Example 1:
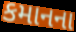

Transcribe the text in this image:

કમાનના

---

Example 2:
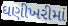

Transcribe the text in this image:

ઘણીખરીમાં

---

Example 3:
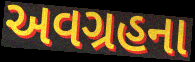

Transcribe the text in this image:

અવગ્રહના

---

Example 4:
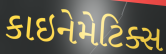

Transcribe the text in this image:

કાઇનેમેટિક્સ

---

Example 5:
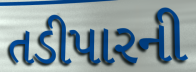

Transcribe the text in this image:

તડીપારની